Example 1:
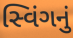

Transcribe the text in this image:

સ્વિંગનું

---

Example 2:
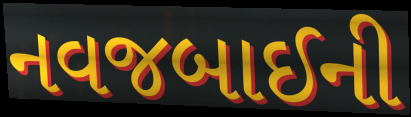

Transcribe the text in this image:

નવજબાઈની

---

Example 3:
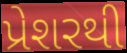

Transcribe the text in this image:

પ્રેશરથી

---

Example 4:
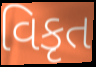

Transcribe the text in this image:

વિકૃત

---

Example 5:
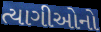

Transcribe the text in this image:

ત્યાગીઓનો